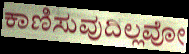
ಕಾಣಿಸುವುದಿಲ್ಲವೋ